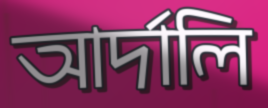
আর্দালি